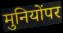
मुनियोंपर